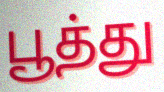
பூத்து